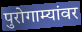
पुरोगाम्यांवर